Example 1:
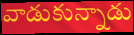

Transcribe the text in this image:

వాడుకున్నాడు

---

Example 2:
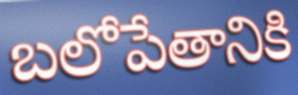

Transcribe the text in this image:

బలోపేతానికి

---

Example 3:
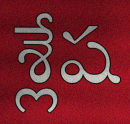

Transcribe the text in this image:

శ్లేష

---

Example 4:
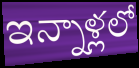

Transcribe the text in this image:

ఇన్నాళ్లలో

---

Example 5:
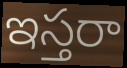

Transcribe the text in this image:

ఇస్తరా